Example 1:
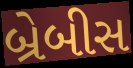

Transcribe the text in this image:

બ્રેબીસ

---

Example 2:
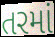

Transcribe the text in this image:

તરમાં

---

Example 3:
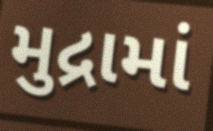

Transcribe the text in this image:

મુદ્રામાં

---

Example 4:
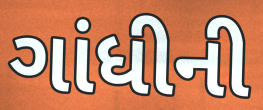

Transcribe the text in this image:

ગાંધીની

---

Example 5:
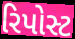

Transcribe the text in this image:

રિપોસ્ટ